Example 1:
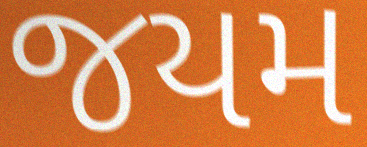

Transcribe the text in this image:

જયમ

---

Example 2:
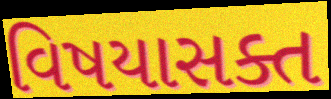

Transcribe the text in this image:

વિષયાસક્ત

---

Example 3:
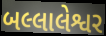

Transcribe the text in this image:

બલ્લાલેશ્વર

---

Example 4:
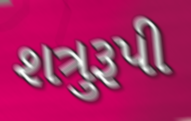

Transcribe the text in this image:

શત્રુરૂપી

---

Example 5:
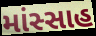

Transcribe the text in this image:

માંસ્સાહ